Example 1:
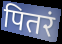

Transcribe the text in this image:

पितरं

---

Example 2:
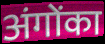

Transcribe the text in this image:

अंगोंका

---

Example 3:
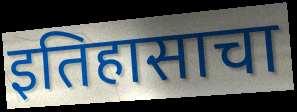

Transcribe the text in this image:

इतिहासाचा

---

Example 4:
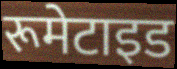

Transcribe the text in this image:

रूमेटाइड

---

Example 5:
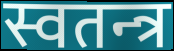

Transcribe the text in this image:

स्वतन्त्र